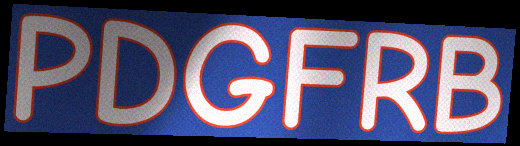
PDGFRB